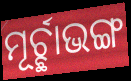
ମୂର୍ଚ୍ଛାଭଙ୍ଗ